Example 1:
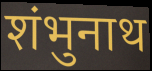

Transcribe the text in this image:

शंभुनाथ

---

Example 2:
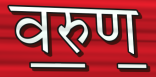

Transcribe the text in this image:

व॒रु॒ण॒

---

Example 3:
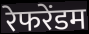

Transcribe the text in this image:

रेफरेंडम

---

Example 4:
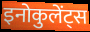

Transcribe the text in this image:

इनोकुलेंट्स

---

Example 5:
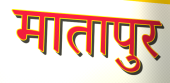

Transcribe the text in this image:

मातापुर